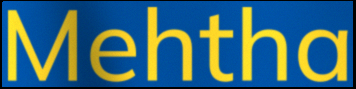
Mehtha